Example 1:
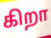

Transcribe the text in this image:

கிறா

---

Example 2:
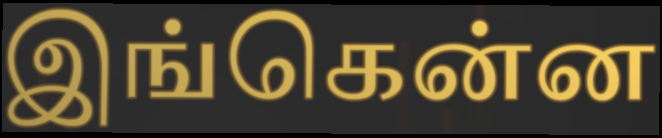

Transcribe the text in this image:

இங்கென்ன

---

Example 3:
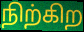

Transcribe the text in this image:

நிற்கிற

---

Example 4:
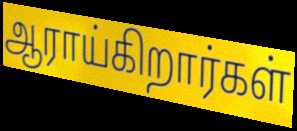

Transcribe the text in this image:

ஆராய்கிறார்கள்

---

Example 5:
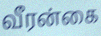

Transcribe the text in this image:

வீரன்கை